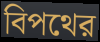
বিপথের